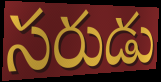
సరుడు